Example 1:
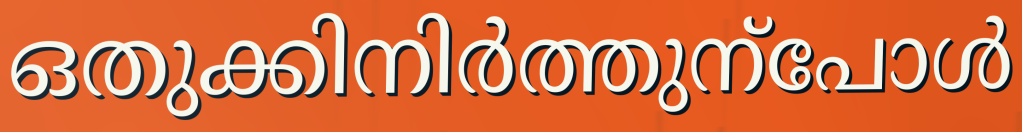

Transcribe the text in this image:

ഒതുക്കിനിർത്തുന്പോൾ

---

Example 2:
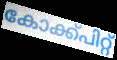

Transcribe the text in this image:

കോക്ക്പിറ്റ്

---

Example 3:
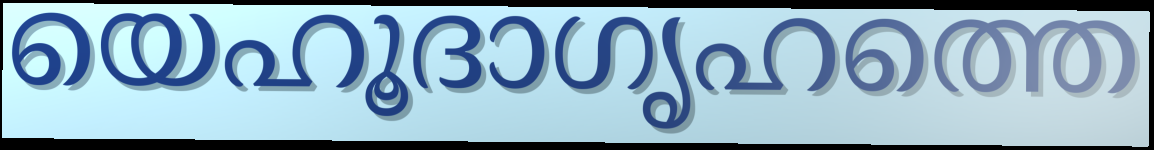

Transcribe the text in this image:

യെഹൂദാഗൃഹത്തെ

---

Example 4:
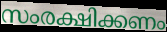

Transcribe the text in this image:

സംരക്ഷിക്കണം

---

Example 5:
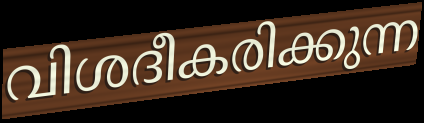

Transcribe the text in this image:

വിശദീകരിക്കുന്ന